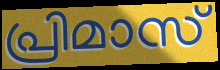
പ്രിമാസ്